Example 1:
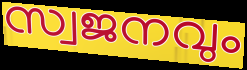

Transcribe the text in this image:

സ്വജനവും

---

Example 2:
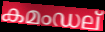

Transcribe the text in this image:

കമംഡല്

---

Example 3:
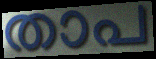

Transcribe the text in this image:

താപ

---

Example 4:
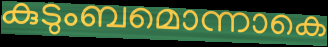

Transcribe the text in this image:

കുടുംബമൊന്നാകെ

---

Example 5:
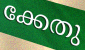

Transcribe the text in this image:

ക്കേതു